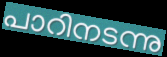
പാറിനടന്നു